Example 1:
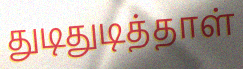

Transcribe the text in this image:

துடிதுடித்தாள்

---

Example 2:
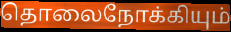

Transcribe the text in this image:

தொலைநோக்கியும்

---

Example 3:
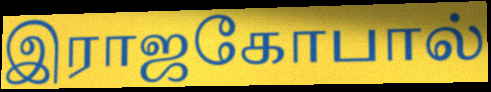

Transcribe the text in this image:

இராஜகோபால்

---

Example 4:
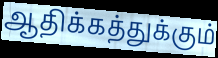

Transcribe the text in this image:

ஆதிக்கத்துக்கும்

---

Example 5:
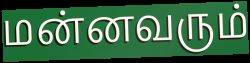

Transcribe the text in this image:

மன்னவரும்